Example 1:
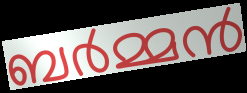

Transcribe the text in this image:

ബർമ്മൻ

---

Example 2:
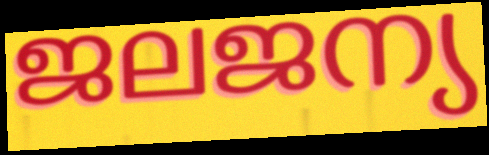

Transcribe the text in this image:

ജലജന്യ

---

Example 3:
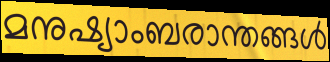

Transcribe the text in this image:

മനുഷ്യാംബരാന്തങ്ങൾ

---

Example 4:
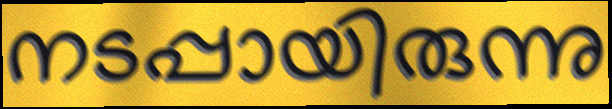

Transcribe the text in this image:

നടപ്പായിരുന്നു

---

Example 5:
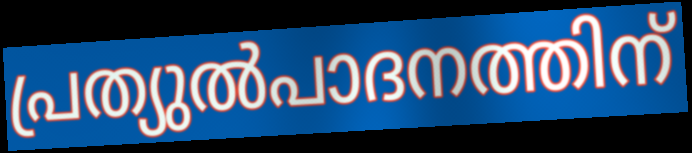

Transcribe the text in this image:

പ്രത്യുൽപാദനത്തിന്